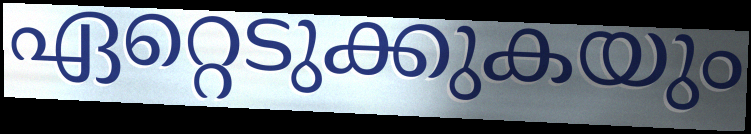
ഏറ്റെടുക്കുകയും